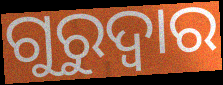
ଗୁରୁଦ୍ଵାର